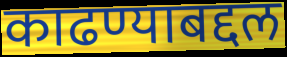
काढण्याबद्दल